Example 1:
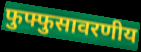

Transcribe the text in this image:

फुफ्फुसावरणीय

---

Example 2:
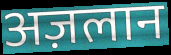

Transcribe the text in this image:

अज़लान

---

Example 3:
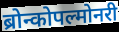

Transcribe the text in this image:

ब्रोन्कोपल्मोनरी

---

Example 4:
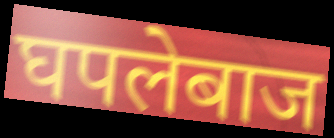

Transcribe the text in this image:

घपलेबाज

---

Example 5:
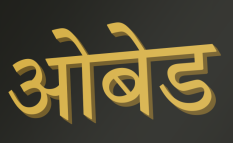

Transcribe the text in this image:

ओबेड